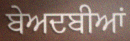
ਬੇਅਦਬੀਆਂ